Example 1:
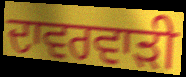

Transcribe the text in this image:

ਦਾਵਰਵਾੜੀ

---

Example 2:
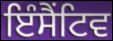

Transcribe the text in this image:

ਇੰਸੈਂਟਿਵ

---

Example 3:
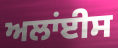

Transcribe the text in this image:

ਅਲਾਂਈਸ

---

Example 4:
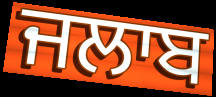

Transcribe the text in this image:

ਜਲਾਬ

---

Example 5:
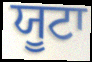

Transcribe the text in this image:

ਯੂਟਾ